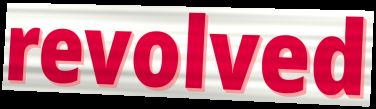
revolved